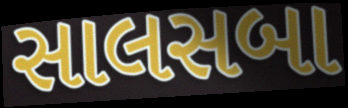
સાલસબા